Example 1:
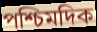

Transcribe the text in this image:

পশ্চিমদিক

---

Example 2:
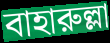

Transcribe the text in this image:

বাহারুল্লা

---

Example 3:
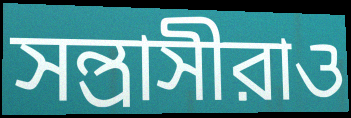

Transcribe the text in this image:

সন্ত্রাসীরাও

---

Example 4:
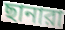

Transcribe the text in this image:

ছানারা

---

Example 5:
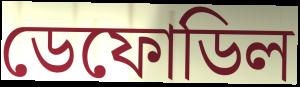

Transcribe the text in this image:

ডেফোডিল